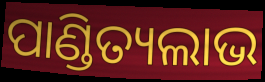
ପାଣ୍ଡିତ୍ୟଲାଭ